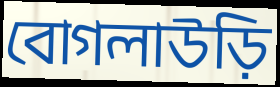
বোগলাউড়ি